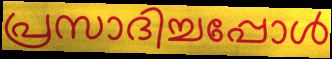
പ്രസാദിച്ചപ്പോൾ